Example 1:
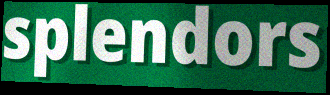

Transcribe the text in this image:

splendors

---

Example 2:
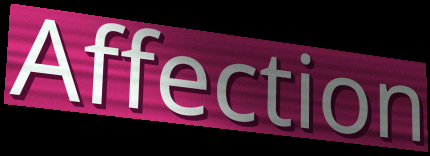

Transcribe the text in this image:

Affection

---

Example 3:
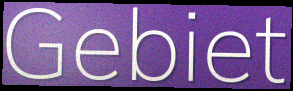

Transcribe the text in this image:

Gebiet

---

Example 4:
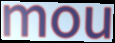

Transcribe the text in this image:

mou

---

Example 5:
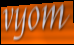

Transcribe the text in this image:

vyom